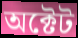
অক্টেট